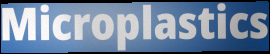
Microplastics